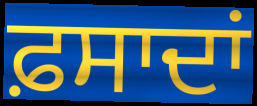
ਫ਼ਸਾਦਾਂ